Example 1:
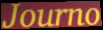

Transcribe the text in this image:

Journo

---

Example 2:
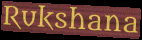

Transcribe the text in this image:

Rukshana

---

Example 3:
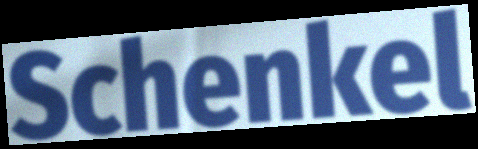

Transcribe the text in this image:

Schenkel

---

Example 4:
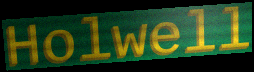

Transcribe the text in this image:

Holwell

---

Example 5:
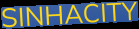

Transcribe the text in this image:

SINHACITY